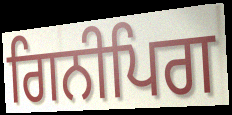
ਗਿਨੀਪਿਗ